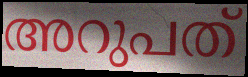
അറുപത്